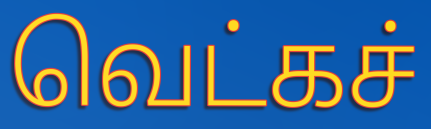
வெட்கச்